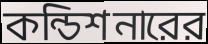
কন্ডিশনারের